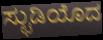
ಸ್ಟುಡಿಯೊದ